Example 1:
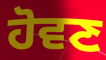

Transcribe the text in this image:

ਹੋਵਣ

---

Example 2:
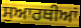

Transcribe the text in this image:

ਸੁਆਰਥੀਆਂ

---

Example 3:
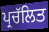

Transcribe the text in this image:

ਪ੍ਰਚੱਲਿਤ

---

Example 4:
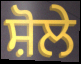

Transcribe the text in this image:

ਸ਼ੋਲੇ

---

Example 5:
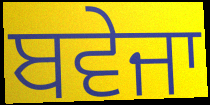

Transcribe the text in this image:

ਬਵੇਜਾ